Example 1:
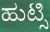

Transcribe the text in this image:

ಹುಟ್ಸಿ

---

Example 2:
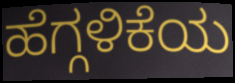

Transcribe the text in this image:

ಹೆಗ್ಗಳಿಕೆಯ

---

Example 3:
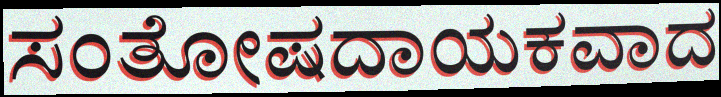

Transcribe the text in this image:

ಸಂತೋಷದಾಯಕವಾದ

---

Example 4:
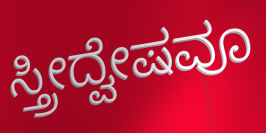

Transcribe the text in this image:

ಸ್ತ್ರೀದ್ವೇಷವೂ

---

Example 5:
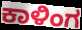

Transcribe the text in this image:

ಕಾಳಿಂಗ